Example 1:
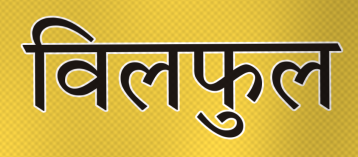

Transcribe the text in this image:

विलफुल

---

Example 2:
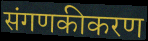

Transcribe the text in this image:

संगणकीकरण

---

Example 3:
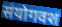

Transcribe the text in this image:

संयोगवश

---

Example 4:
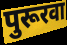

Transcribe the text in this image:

पुरूरवा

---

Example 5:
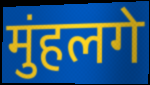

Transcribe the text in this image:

मुंहलगे